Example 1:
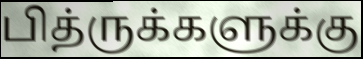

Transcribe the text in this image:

பித்ருக்களுக்கு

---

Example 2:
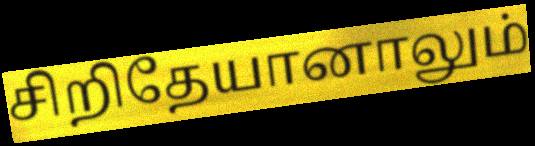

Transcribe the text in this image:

சிறிதேயானாலும்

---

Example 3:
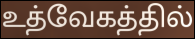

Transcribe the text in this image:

உத்வேகத்தில்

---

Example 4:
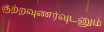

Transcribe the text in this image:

குற்றவுணர்வுடனும்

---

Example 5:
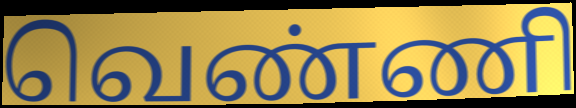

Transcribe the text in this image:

வெண்ணி